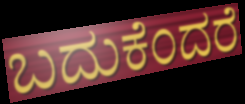
ಬದುಕೆಂದರೆ